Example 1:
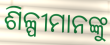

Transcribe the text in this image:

ଶିଳ୍ପୀମାନଙ୍କୁ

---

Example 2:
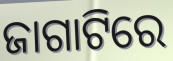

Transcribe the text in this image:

ଜାଗାଟିରେ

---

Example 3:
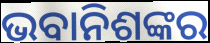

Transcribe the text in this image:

ଭବାନିଶଙ୍କର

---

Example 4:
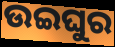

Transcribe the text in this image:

ଉଇଘୁର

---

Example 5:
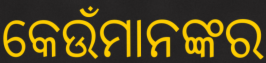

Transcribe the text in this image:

କେଉଁମାନଙ୍କର